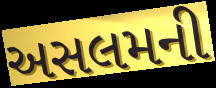
અસલમની